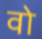
वो